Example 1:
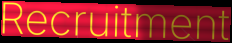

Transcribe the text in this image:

Recruitment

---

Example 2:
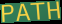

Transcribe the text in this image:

PATH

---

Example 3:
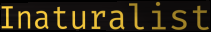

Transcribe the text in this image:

Inaturalist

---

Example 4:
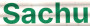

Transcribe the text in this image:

Sachu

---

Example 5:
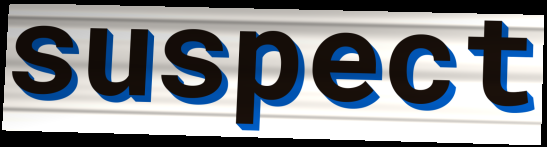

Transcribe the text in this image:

suspect